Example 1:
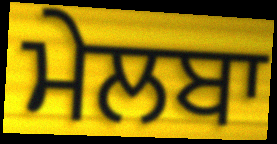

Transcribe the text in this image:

ਮੇਲਬਾ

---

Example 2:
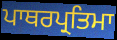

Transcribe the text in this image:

ਪਾਥਰਪ੍ਰਤਿਮਾ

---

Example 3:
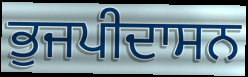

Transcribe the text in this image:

ਭੁਜਪੀਦਾਸਨ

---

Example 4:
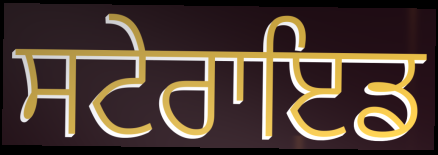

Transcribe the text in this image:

ਸਟੇਰਾਇਡ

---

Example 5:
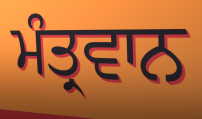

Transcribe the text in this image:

ਮੰਤ੍ਰਵਾਨ